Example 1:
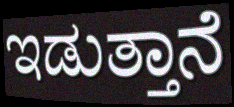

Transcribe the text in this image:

ಇಡುತ್ತಾನೆ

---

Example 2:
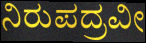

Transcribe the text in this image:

ನಿರುಪದ್ರವೀ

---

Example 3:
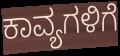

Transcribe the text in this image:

ಕಾವ್ಯಗಳಿಗೆ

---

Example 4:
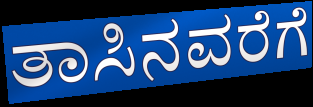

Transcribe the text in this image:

ತಾಸಿನವರೆಗೆ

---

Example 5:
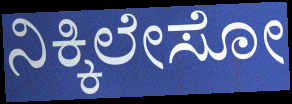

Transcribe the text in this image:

ನಿಕ್ಕಿಲೇಸೋ